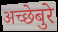
अच्छेबुरे